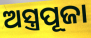
ଅସ୍ତ୍ରପୂଜା